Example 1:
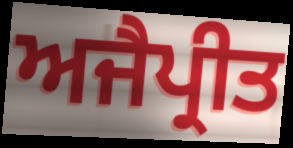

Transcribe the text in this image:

ਅਜੈਪ੍ਰੀਤ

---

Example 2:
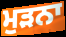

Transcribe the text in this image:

ਮੁੜਨਾ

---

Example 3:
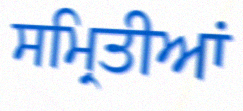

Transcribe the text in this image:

ਸਮ੍ਰਿਤੀਆਂ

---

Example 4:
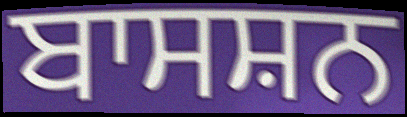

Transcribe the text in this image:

ਬਾਸਸ਼ਨ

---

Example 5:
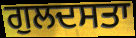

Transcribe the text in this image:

ਗੁਲਦਸਤਾ